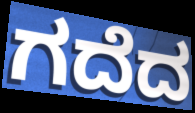
ಗದೆದ